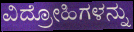
ವಿದ್ರೋಹಿಗಳನ್ನು